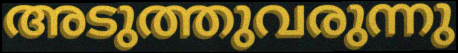
അടുത്തുവരുന്നു